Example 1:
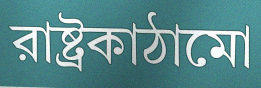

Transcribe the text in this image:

রাষ্ট্রকাঠামো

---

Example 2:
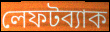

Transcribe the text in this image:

লেফটব্যাক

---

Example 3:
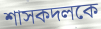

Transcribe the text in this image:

শাসকদলকে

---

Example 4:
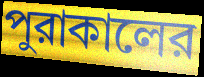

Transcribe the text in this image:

পুরাকালের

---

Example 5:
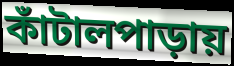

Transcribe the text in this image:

কাঁটালপাড়ায়